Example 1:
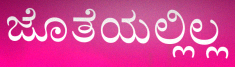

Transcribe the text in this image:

ಜೊತೆಯಲ್ಲಿಲ್ಲ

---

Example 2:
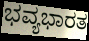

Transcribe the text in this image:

ಭವ್ಯಭಾರತ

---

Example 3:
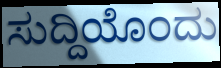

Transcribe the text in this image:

ಸುದ್ದಿಯೊಂದು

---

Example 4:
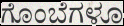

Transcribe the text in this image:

ಗೊಂಬೆಗಳೂ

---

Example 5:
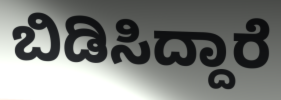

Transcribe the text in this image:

ಬಿಡಿಸಿದ್ದಾರೆ